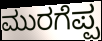
ಮುರಗೆಪ್ಪ